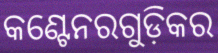
କଣ୍ଟେନରଗୁଡ଼ିକର